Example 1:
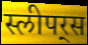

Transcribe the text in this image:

स्लीपर्स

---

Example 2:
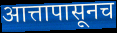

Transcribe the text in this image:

आत्तापासूनच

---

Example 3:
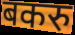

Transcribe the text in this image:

बकरु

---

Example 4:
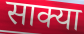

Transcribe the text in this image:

साक्या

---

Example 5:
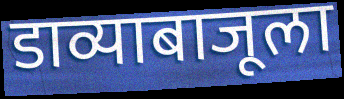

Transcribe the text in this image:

डाव्याबाजूला